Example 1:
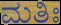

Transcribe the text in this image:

ಮತಿಃ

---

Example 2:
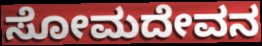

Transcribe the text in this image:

ಸೋಮದೇವನ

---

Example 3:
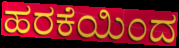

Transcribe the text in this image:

ಹರಕೆಯಿಂದ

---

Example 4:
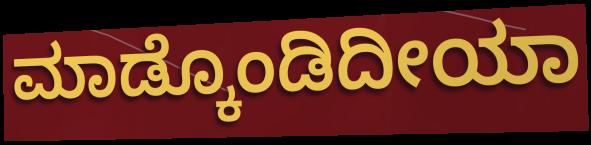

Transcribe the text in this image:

ಮಾಡ್ಕೊಂಡಿದೀಯಾ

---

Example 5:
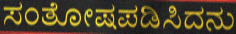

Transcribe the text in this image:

ಸಂತೋಷಪಡಿಸಿದನು